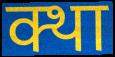
क्था